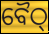
ବୈଠ୍